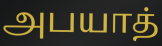
அபயாத்